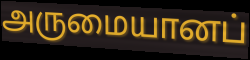
அருமையானப்